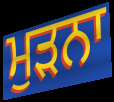
ਮੁੜਨਾ